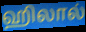
ஹிலால்